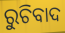
ରୁଚିବାଦ